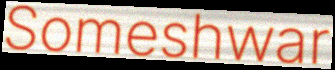
Someshwar